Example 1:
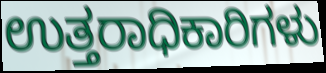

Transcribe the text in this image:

ಉತ್ತರಾಧಿಕಾರಿಗಳು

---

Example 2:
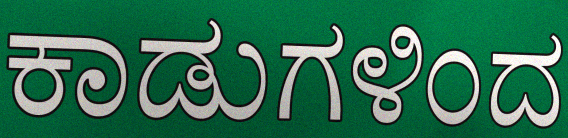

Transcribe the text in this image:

ಕಾಡುಗಳಿಂದ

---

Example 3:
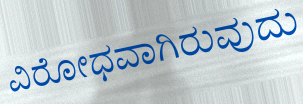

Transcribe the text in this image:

ವಿರೋಧವಾಗಿರುವುದು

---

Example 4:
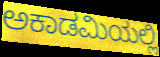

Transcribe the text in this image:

ಅಕಾಡಮಿಯಲ್ಲಿ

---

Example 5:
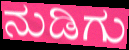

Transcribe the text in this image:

ನುಡಿಗು